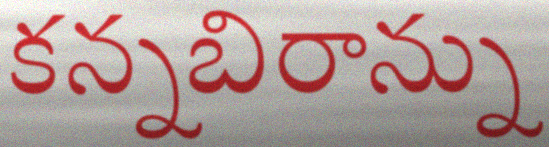
కన్నబిరాన్ను